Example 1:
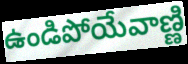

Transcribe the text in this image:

ఉండిపోయేవాణ్ణి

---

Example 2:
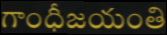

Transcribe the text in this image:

గాంధీజయంతి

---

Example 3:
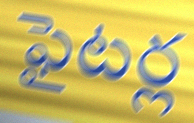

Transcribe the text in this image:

ఫైటర్ల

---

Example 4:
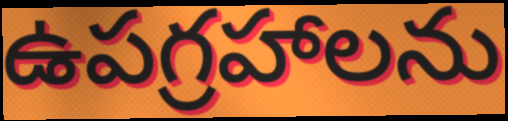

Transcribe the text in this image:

ఉపగ్రహాలను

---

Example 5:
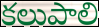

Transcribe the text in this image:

కలుపాలి